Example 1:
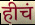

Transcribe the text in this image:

हीचं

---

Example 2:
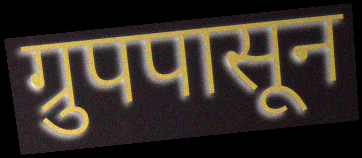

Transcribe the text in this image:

ग्रुपपासून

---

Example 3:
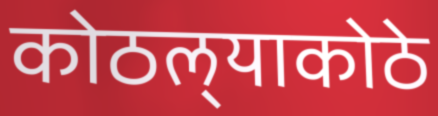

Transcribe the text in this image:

कोठल्याकोठे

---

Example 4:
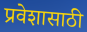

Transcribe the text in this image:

प्रवेशासाठी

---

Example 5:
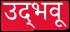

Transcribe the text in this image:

उद्‌भवू